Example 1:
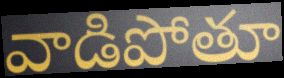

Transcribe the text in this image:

వాడిపోతూ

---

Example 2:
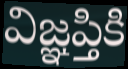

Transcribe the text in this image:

విజ్ఞప్తికి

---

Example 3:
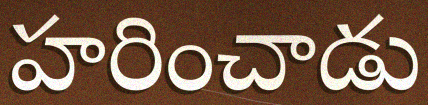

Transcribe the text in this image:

హరించాడు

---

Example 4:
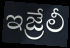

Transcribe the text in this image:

ఇజ్రేలీ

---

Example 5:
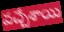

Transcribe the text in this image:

వచ్చేశాయి